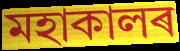
মহাকালৰ